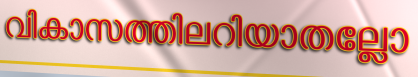
വികാസത്തിലറിയാതല്ലോ